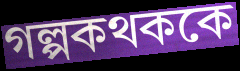
গল্পকথককে